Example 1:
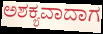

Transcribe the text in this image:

ಅಶಕ್ಯವಾದಾಗ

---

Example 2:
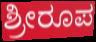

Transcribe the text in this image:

ಶ್ರೀರೂಪ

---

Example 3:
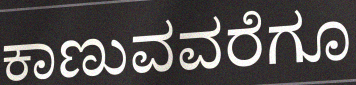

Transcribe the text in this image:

ಕಾಣುವವರೆಗೂ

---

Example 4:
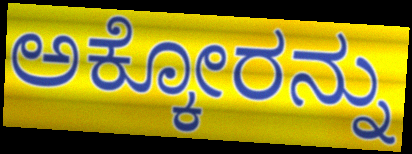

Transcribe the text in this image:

ಅಕ್ಕೋರನ್ನು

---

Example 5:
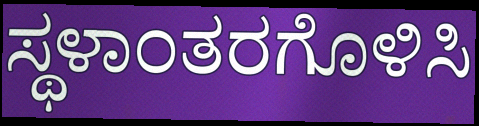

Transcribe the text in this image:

ಸ್ಥಳಾಂತರಗೊಳಿಸಿ